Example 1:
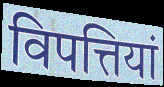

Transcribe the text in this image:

विपत्तियां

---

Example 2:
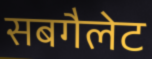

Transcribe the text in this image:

सबगैलेट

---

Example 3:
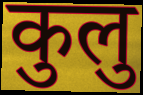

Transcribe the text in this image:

कुलु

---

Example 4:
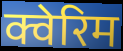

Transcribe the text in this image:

क्वेरिम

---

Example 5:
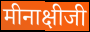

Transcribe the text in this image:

मीनाक्षीजी